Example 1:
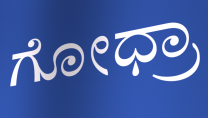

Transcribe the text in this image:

ಗೋಧ್ರಾ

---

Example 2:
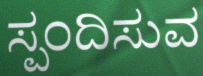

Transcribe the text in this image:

ಸ್ಪಂದಿಸುವ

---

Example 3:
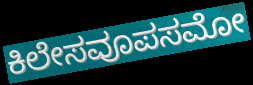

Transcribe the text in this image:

ಕಿಲೇಸವೂಪಸಮೋ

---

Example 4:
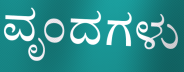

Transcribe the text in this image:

ವೃಂದಗಳು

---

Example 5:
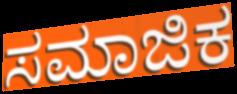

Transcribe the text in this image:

ಸಮಾಜಿಕ